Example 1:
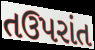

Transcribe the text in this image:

તઉપરાંત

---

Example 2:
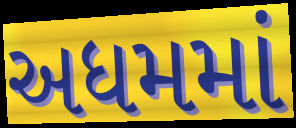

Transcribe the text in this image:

અધમમાં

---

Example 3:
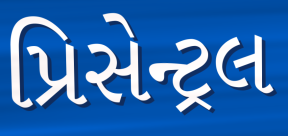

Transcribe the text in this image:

પ્રિસેન્ટ્રલ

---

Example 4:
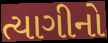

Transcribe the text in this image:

ત્યાગીનો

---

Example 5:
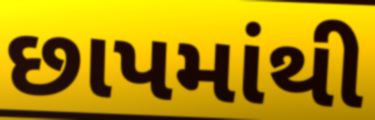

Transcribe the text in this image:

છાપમાંથી